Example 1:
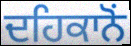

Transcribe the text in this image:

ਦਹਿਕਾਨੋਂ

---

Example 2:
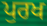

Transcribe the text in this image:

ਪੁਰਖ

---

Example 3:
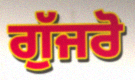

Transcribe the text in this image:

ਗੁੱਜਰੋ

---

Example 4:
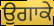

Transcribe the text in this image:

ਉਗਾਕੇ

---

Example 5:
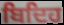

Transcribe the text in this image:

ਬਿਦਿਹ